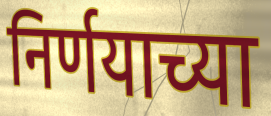
निर्णयाच्या